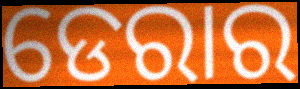
ଡେରାର